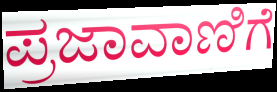
ಪ್ರಜಾವಾಣಿಗೆ